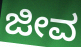
ಜೀವ